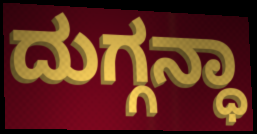
ದುಗ್ಗನ್ಧಾ